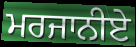
ਮਰਜਾਨੀਏ